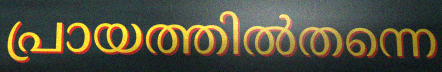
പ്രായത്തിൽതന്നെ